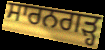
ਸਾਰਨਗੜ੍ਹ